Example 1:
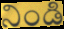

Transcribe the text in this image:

నిండి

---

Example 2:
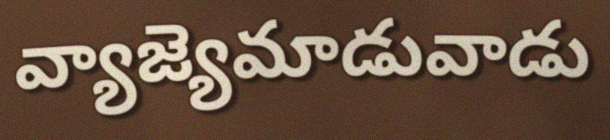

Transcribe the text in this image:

వ్యాజ్యెమాడువాడు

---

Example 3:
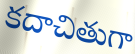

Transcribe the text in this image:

కదాచితుగా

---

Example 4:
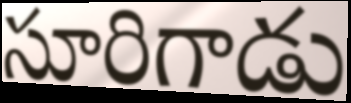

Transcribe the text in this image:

సూరిగాడు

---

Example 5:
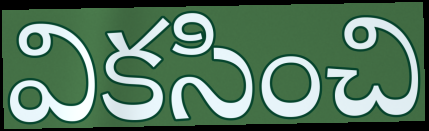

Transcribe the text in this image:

వికసించి